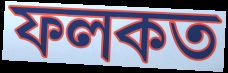
ফলকত